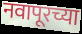
नवापूरच्या